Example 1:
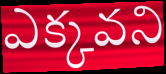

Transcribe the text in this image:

ఎక్కవని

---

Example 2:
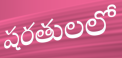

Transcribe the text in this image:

షరతులలో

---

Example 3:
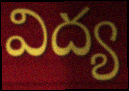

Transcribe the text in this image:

విద్య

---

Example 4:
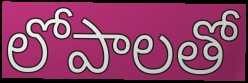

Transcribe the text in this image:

లోపాలతో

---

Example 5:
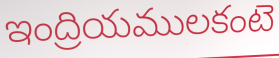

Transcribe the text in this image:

ఇంద్రియములకంటె